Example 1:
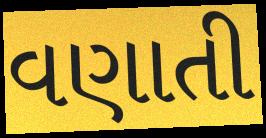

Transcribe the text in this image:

વણાતી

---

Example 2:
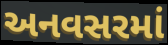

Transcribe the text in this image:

અનવસરમાં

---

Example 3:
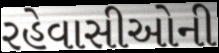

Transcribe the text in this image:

રહેવાસીઓની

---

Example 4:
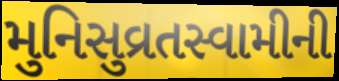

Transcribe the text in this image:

મુનિસુવ્રતસ્વામીની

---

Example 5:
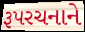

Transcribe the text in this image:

રૂપરચનાને